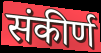
संकीर्ण